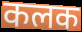
कलक